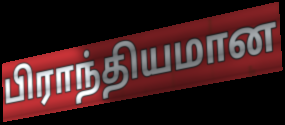
பிராந்தியமான